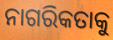
ନାଗରିକତାକୁ